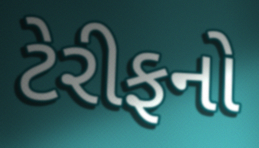
ટેરીફનો